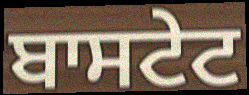
ਬਾਸਟੇਟ